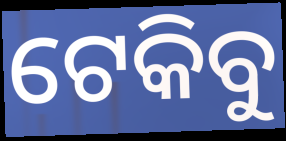
ଟେକିବୁ